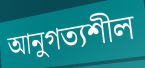
আনুগত্যশীল